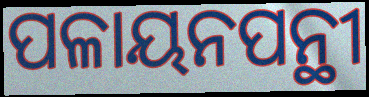
ପଳାୟନପନ୍ଥୀ